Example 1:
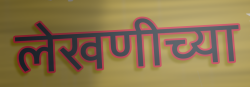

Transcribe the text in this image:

लेखणीच्या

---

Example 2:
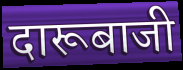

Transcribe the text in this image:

दारूबाजी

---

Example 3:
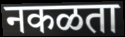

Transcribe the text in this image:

नकळता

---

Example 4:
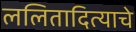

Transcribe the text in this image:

ललितादित्याचे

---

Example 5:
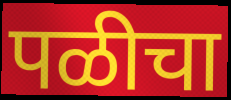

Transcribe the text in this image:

पळीचा